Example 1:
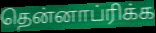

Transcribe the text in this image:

தென்னாப்ரிக்க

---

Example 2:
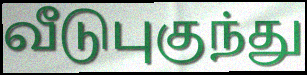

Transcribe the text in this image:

வீடுபுகுந்து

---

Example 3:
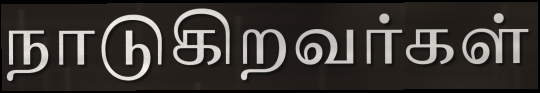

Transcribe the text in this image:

நாடுகிறவர்கள்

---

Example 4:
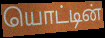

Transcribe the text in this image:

யொட்டின்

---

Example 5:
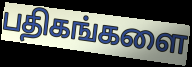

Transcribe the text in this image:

பதிகங்களை